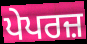
ਪੇਪਰਜ਼